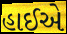
હાઈએ